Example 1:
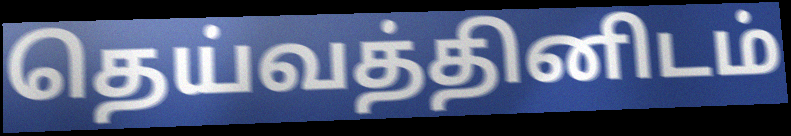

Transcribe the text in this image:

தெய்வத்தினிடம்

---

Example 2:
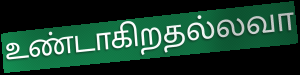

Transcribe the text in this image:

உண்டாகிறதல்லவா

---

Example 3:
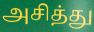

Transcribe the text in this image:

அசித்து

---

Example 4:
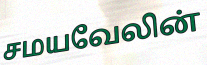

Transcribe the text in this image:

சமயவேலின்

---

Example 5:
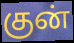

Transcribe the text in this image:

குன்